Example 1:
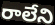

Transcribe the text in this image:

రాలేని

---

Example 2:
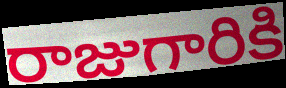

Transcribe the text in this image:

రాజుగారికి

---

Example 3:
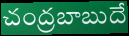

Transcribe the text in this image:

చంద్రబాబుదే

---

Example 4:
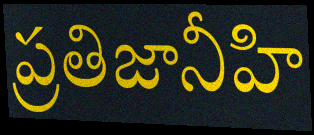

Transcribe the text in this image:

ప్రతిజానీహి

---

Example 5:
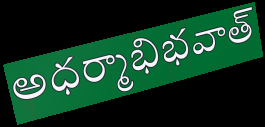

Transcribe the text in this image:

అధర్మాభిభవాత్